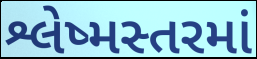
શ્લેષ્મસ્તરમાં